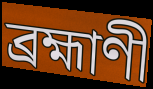
ব্রহ্মাণী